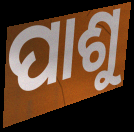
ପାଶୁ